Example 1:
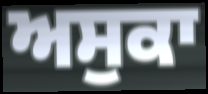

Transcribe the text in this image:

ਅਸੁਕਾ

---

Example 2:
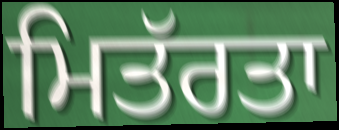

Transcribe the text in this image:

ਮਿਤੱਰਤਾ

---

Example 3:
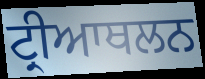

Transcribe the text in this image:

ਟ੍ਰੀਆਥਲਨ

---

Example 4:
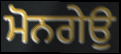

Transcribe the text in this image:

ਮੋਨਗੇਉ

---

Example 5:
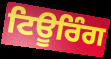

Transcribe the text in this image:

ਟਿਊਰਿੰਗ